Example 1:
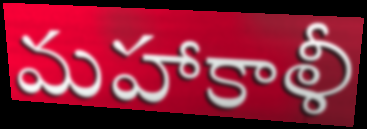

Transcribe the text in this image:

మహాకాళీ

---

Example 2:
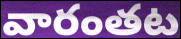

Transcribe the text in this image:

వారంతట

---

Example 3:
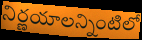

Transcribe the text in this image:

నిర్ణయాలన్నింటిలో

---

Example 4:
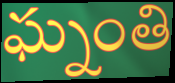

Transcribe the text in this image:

ఘ్నంతి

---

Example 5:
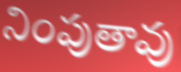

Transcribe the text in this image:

నింపుతావు